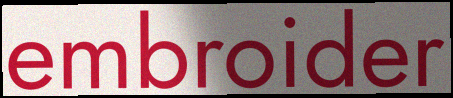
embroider